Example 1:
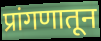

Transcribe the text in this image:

प्रांगणातून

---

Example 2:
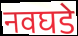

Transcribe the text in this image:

नवघडे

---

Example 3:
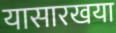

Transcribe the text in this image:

यासारखया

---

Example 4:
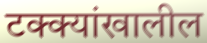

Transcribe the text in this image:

टक्क्यांखालील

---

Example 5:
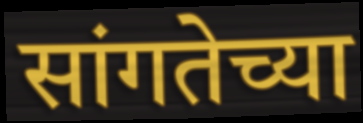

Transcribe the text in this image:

सांगतेच्या